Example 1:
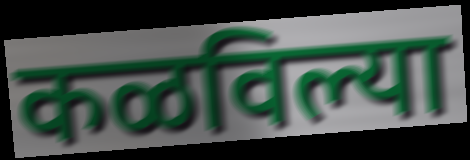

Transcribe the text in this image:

कळविल्या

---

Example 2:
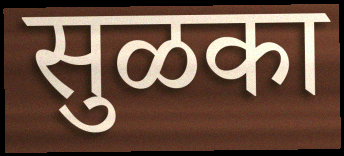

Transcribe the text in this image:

सुळका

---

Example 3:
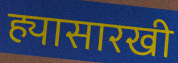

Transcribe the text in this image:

ह्यासारखी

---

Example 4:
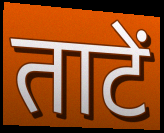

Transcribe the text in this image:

ताटें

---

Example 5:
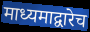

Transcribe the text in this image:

माध्यमाद्वारेच